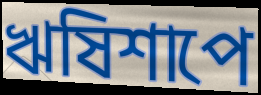
ঋষিশাপে